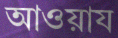
আওয়ায